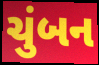
ચુંબન